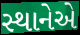
સ્થાનેએ